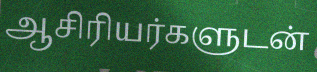
ஆசிரியர்களுடன்